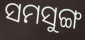
ସମସୁଙ୍ଗ